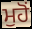
ਮੁਹੋਂ